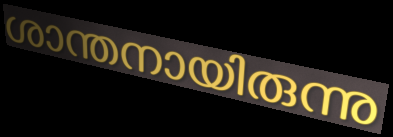
ശാന്തനായിരുന്നു